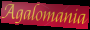
Agalomania